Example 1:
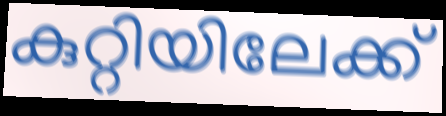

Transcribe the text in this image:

കുറ്റിയിലേക്ക്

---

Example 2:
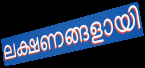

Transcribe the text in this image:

ലക്ഷണങ്ങളായി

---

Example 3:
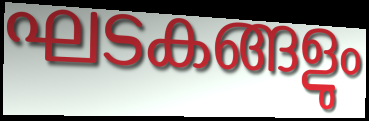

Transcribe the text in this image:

ഘടകങ്ങളും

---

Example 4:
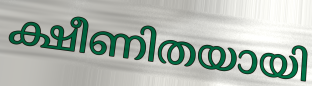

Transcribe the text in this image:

ക്ഷീണിതയായി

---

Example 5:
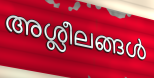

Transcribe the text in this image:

അശ്ലീലങ്ങൾ